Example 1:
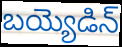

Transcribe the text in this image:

బయ్యెడిన్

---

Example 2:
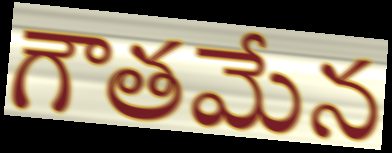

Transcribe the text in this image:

గౌతమేన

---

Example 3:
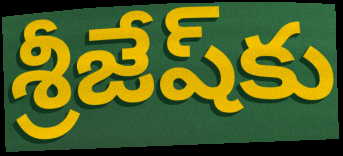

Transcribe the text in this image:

శ్రీజేష్‌కు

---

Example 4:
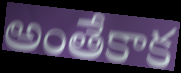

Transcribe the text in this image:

అంతేకాక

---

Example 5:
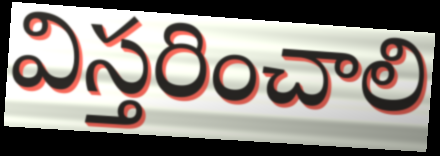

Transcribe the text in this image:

విస్తరించాలి